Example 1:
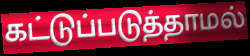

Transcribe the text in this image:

கட்டுப்படுத்தாமல்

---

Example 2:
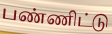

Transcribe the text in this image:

பண்ணிட்டு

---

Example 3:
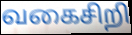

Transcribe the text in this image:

வகைசிறி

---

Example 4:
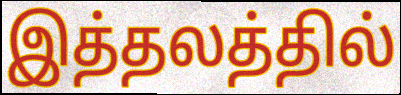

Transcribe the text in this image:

இத்தலத்தில்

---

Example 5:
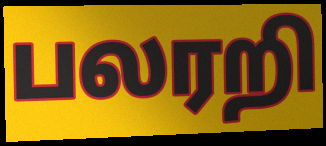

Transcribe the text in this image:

பலரறி